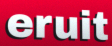
eruit